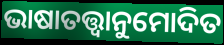
ଭାଷାତତ୍ତ୍ୱାନୁମୋଦିତ